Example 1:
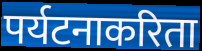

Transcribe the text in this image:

पर्यटनाकरिता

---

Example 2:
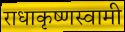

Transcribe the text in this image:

राधाकृष्णस्वामी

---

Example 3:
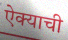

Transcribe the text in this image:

ऐक्याची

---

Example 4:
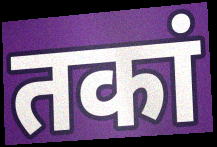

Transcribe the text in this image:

तकां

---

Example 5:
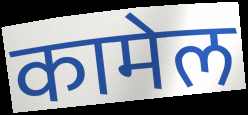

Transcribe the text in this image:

कामेल